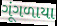
ગૂંગળાયા